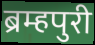
ब्रम्हपुरी